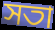
সতা